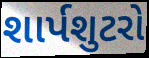
શાર્પશુટરો